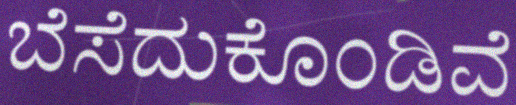
ಬೆಸೆದುಕೊಂಡಿವೆ